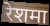
रेशमा